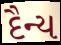
દૈન્ય